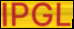
IPGL